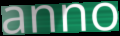
anno